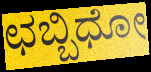
ಛಬ್ಬಿಧೋ